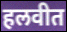
हलवीत